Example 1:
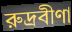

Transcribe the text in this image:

রুদ্রবীণা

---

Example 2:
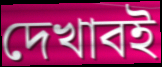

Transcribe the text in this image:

দেখাবই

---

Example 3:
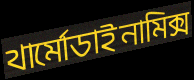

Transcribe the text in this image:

থার্মোডাইনামিক্স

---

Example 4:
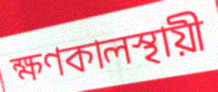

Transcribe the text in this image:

ক্ষণকালস্থায়ী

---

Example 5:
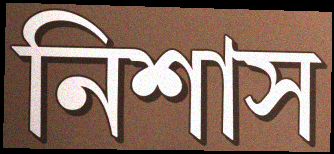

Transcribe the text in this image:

নিশাস